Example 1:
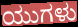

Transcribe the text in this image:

ಯುಗಳು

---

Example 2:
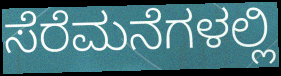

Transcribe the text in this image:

ಸೆರೆಮನೆಗಳಲ್ಲಿ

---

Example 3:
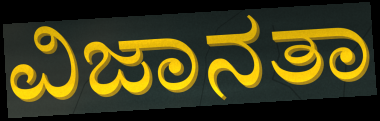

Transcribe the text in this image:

ವಿಜಾನತಾ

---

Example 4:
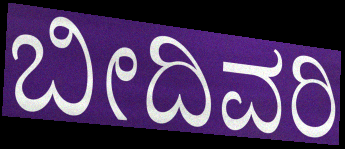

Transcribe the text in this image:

ಬೀದಿವರಿ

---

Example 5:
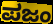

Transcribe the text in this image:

ಪಜಂ